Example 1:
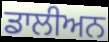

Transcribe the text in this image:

ਡਾਲੀਅਨ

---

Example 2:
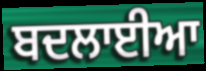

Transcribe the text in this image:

ਬਦਲਾਈਆ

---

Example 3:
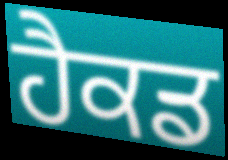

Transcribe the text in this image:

ਹੈਕਡ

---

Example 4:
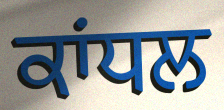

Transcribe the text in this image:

ਕਾਂਧਲ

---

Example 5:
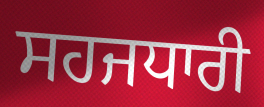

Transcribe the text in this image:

ਸਹਜਧਾਰੀ